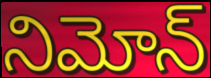
నిమోన్